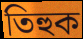
তিহুক